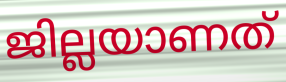
ജില്ലയാണത്